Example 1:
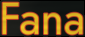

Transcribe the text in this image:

Fana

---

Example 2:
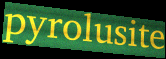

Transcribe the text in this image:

pyrolusite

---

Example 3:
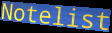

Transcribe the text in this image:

Notelist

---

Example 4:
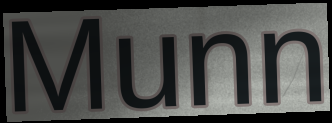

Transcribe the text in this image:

Munn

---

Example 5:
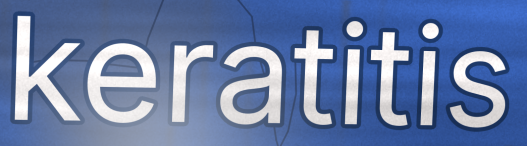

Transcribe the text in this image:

keratitis